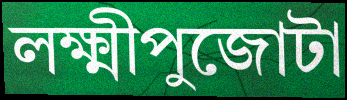
লক্ষ্মীপুজোটা